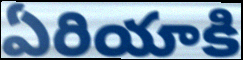
ఏరియాకి